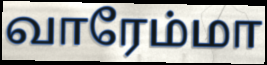
வாரேம்மா